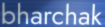
bharchak